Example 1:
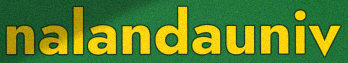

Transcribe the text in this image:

nalandauniv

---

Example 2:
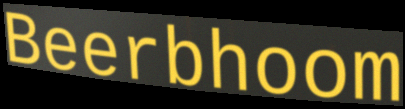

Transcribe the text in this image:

Beerbhoom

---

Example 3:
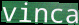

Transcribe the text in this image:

vinca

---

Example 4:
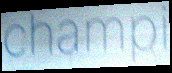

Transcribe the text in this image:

champi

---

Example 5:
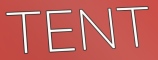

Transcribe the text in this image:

TENT